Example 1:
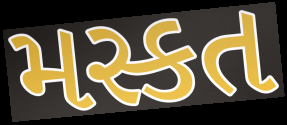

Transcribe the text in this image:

મસ્કત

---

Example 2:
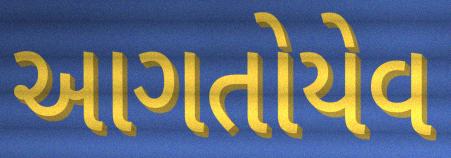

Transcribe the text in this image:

આગતોયેવ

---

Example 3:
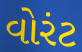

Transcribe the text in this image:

વોરંટ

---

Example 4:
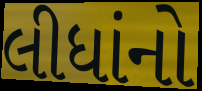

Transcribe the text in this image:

લીધાંનો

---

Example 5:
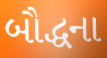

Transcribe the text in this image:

બૌદ્ધના